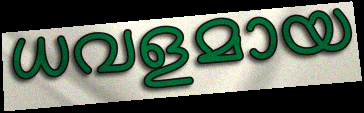
ധവളമായ